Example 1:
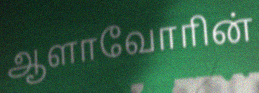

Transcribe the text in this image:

ஆளாவோரின்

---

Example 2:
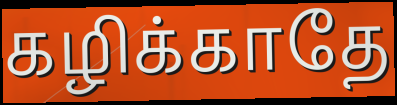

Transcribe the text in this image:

கழிக்காதே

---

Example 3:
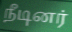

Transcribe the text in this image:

நீடினர்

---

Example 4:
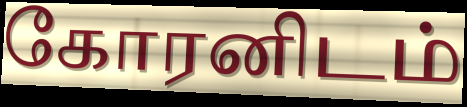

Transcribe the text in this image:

கோரனிடம்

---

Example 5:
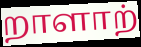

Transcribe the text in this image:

றாளாற்